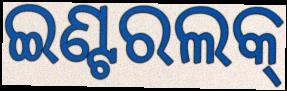
ଇଣ୍ଟରଲକ୍